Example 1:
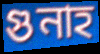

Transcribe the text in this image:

গুনাহ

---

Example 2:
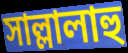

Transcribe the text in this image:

সাল্লালাহু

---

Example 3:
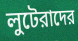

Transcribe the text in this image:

লুটেরাদের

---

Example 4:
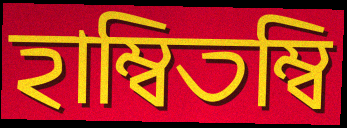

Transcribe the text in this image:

হাম্বিতম্বি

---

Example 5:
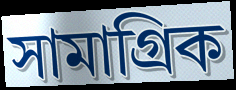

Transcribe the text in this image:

সামাগ্রিক